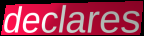
declares